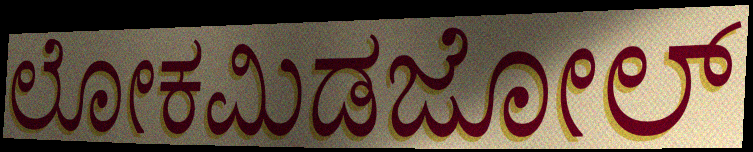
ಲೋಕಮಿಡಜೋಲ್